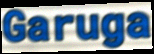
Garuga